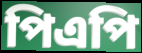
পিএপি